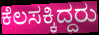
ಕೆಲಸಕ್ಕಿದ್ದರು